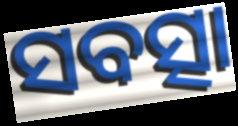
ସବତ୍ସା